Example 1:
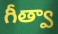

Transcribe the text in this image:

గీత్వా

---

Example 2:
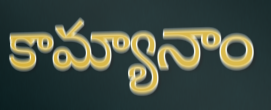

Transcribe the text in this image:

కామ్యానాం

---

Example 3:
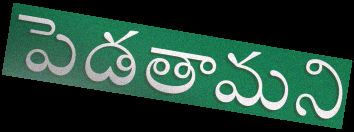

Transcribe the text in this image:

పెడతామని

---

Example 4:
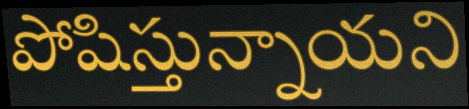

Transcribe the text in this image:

పోషిస్తున్నాయని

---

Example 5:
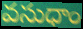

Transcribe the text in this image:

వసుధాం